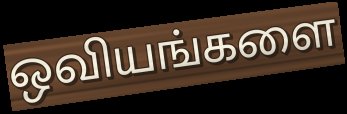
ஒவியங்களை